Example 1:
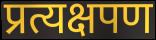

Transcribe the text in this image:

प्रत्यक्षपण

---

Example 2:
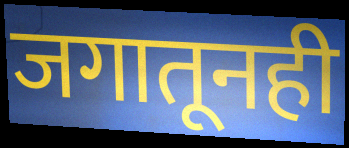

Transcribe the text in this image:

जगातूनही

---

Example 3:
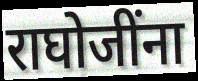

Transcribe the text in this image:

राघोजींना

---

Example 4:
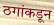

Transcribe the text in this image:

ठगांकडून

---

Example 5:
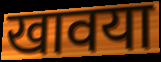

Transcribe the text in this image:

खावया